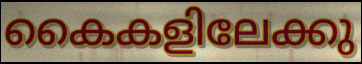
കൈകളിലേക്കു